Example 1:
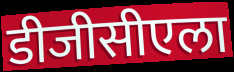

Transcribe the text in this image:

डीजीसीएला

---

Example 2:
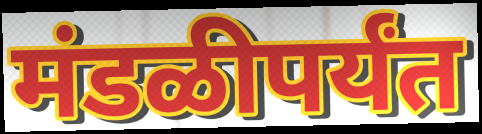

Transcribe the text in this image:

मंडळीपर्यंत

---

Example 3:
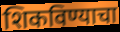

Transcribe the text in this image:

शिकविण्याचा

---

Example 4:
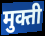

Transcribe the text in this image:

मुक्ती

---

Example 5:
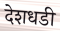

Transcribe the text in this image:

देशधडी